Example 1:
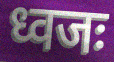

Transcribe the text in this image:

ध्वजः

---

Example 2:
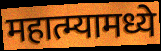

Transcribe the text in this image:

महात्म्यामध्ये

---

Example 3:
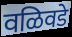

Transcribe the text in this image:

वळिवडे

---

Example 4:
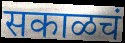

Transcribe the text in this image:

सकाळचं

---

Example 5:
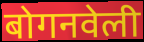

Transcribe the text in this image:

बोगनवेली